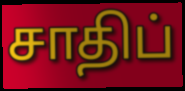
சாதிப்